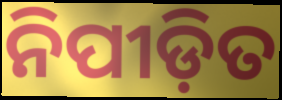
ନିପୀଡ଼ିତ